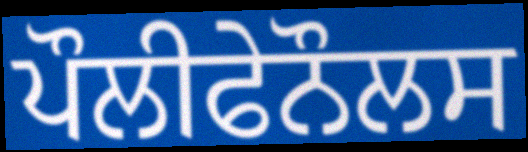
ਪੌਲੀਫੇਨੌਲਸ